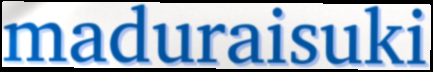
maduraisuki